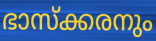
ഭാസ്ക്കരനും